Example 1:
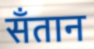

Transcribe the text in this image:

सँतान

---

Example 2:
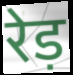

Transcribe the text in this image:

रेड़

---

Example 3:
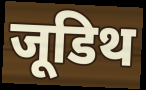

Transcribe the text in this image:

जूडिथ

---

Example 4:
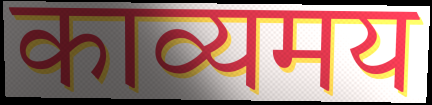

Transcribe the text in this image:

काव्यमय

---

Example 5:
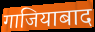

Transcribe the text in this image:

गाजियाबाद